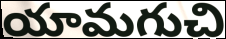
యామగుచి